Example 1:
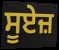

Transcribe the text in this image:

ਸੂਏਜ਼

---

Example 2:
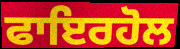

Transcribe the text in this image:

ਫਾਇਰਹੋਲ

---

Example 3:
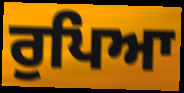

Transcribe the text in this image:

ਰੁਪਿਆ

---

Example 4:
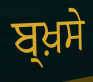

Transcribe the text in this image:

ਬ੍ਖ਼ਸੇ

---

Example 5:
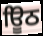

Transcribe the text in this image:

ਊਿਠ